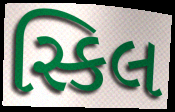
સ્કિલ